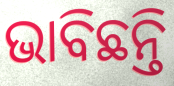
ଭାବିଛନ୍ତି